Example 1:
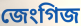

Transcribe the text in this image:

জেংগিজ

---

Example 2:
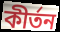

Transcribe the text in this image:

কীৰ্তন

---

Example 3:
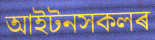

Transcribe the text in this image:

আইটনসকলৰ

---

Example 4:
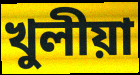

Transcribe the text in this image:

খুলীয়া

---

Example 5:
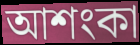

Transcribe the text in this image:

আশংকা